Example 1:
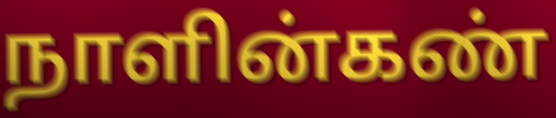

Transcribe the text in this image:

நாளின்கண்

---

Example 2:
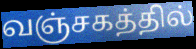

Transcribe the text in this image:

வஞ்சகத்தில்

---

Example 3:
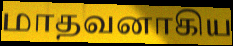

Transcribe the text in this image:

மாதவனாகிய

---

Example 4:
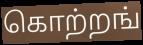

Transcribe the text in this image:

கொற்றங்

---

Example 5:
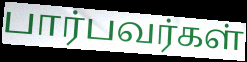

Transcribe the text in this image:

பார்பவர்கள்